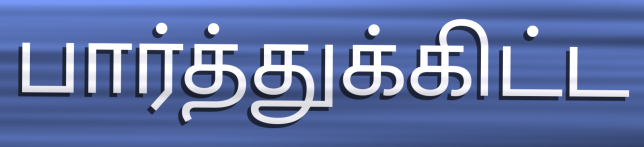
பார்த்துக்கிட்ட